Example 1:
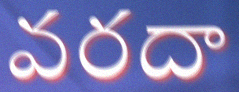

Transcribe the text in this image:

వరదా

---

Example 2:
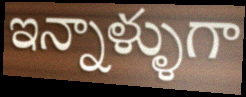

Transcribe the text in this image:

ఇన్నాళ్ళుగా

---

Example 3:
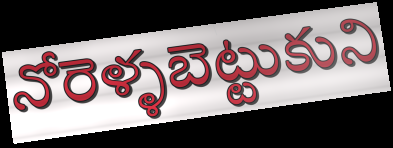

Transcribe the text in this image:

నోరెళ్ళబెట్టుకుని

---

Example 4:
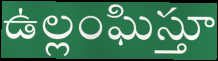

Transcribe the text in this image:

ఉల్లంఘిస్తూ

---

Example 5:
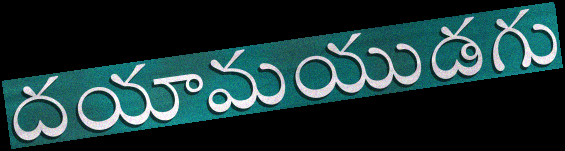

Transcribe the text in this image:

దయామయుడగు